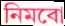
নিমবো